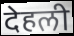
देहली